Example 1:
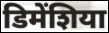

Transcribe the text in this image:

डिमेंशिया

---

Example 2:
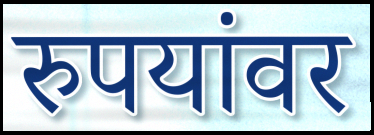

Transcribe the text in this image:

रुपयांवर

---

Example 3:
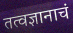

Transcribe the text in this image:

तत्वज्ञानाचं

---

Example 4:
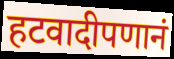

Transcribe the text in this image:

हटवादीपणानं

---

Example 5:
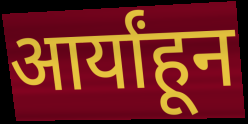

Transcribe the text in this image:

आर्यांहून